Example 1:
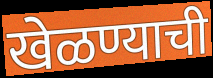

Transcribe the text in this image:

खेळण्याची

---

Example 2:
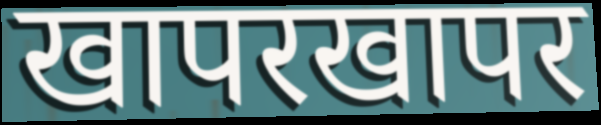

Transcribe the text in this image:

खापरखापर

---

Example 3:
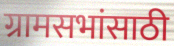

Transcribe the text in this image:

ग्रामसभांसाठी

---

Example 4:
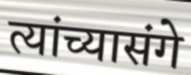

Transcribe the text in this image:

त्यांच्यासंगे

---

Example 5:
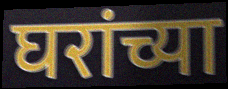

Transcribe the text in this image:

घरांच्या